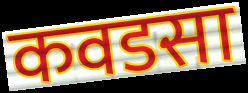
कवडसा